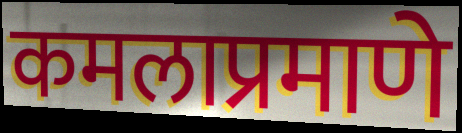
कमलाप्रमाणे